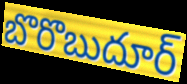
బొరొబుదూర్